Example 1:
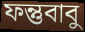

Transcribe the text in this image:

ফন্তুবাবু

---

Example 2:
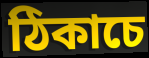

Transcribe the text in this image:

ঠিকাচে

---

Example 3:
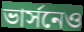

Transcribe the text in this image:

ভার্সনেও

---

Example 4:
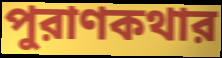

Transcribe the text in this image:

পুরাণকথার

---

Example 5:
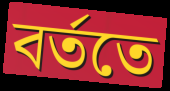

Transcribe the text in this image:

বর্ততে